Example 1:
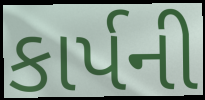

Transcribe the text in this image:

કાર્પની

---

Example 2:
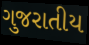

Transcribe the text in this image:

ગુજરાતીય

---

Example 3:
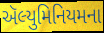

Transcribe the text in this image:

ઍલ્યુમિનિયમના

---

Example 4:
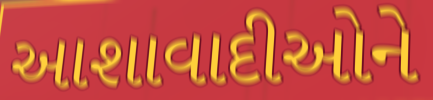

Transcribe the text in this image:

આશાવાદીઓને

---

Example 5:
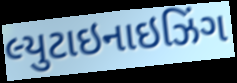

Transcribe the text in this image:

લ્યુટાઇનાઇઝિંગ